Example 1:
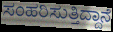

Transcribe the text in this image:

ಸಂಹರಿಸುತ್ತಿದ್ದಾನೆ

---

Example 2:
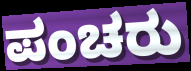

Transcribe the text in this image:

ಪಂಚರು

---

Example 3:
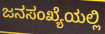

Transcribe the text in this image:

ಜನಸಂಖ್ಯೆಯಲ್ಲಿ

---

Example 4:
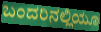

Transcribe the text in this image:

ಬಂದರಿನಲ್ಲಿಯೂ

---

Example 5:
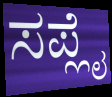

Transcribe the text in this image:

ಸಪ್ಲೈ